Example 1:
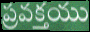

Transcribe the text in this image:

ప్రవక్తయు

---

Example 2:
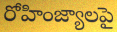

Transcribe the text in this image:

రోహింజ్యాలపై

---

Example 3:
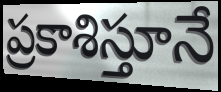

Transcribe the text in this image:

ప్రకాశిస్తూనే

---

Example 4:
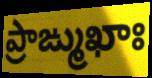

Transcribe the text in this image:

ప్రాఙ్ముఖాః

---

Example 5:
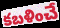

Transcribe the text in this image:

కబళించే